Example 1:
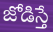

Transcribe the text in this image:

జోడిస్తే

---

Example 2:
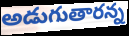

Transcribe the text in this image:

అడుగుతారన్న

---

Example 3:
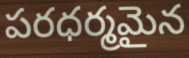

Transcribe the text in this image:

పరధర్మమైన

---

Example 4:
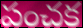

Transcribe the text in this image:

పంచక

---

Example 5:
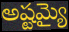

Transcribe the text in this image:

అష్టమ్యై